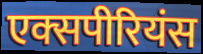
एक्‍सपीरियंस